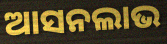
ଆସନଲାଭ